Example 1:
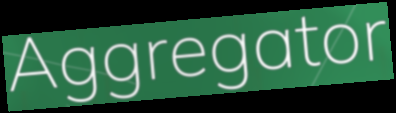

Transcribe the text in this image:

Aggregator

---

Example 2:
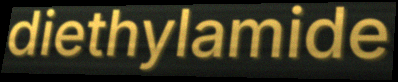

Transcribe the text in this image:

diethylamide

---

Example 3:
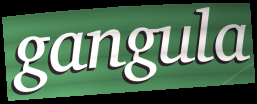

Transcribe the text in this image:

gangula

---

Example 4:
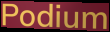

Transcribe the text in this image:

Podium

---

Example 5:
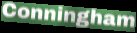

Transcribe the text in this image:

Conningham